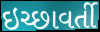
ઇચ્છાવર્તી